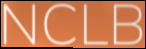
NCLB